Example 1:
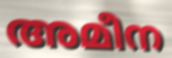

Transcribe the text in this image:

അമീന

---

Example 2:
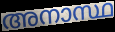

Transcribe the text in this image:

അനാസ്ഥ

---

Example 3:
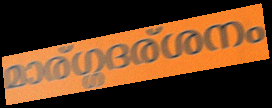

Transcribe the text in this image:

മാര്ഗ്ഗദര്ശനം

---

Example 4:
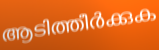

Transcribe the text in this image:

ആടിത്തീർക്കുക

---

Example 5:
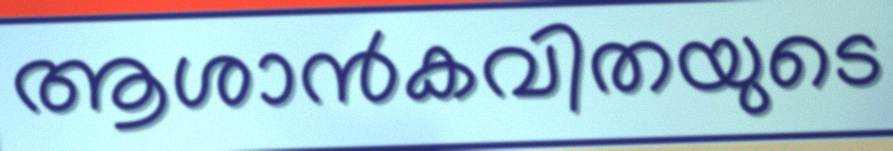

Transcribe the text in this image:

ആശാൻകവിതയുടെ